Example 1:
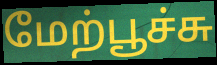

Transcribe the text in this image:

மேற்பூச்சு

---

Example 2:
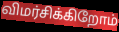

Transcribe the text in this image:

விமர்சிக்கிறோம்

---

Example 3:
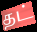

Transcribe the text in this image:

தட்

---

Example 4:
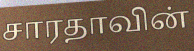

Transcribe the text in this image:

சாரதாவின்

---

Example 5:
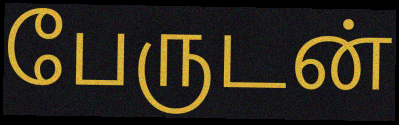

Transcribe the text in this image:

பேருடன்